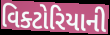
વિક્ટોરિયાની